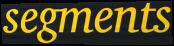
segments